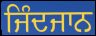
ਜਿੰਦਜਾਨ